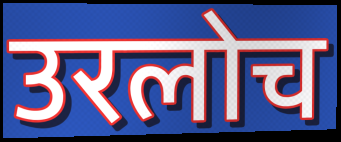
उरलोच